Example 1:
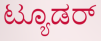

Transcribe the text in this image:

ಟ್ಯೂಡರ್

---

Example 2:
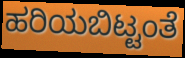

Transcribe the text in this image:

ಹರಿಯಬಿಟ್ಟಂತೆ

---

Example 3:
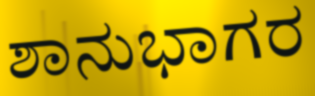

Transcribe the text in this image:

ಶಾನುಭಾಗರ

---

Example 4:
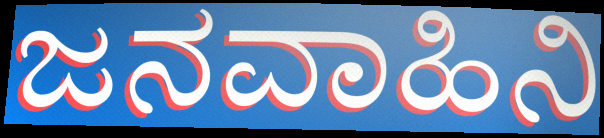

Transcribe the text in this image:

ಜನವಾಹಿನಿ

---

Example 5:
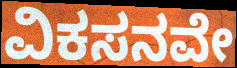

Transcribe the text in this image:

ವಿಕಸನವೇ